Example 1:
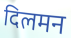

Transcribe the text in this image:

दिलमन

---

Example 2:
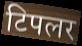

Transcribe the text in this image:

टिपलर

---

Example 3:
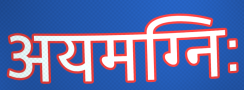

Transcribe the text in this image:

अयमग्निः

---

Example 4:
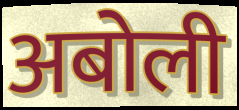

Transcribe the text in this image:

अबोली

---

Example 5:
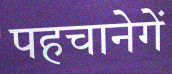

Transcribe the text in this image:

पहचानेगें